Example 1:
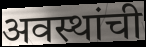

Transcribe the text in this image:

अवस्थांची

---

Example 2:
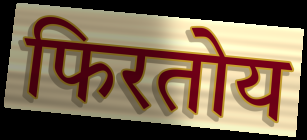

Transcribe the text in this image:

फिरतोय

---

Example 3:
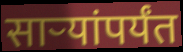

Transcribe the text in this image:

साऱ्यांपर्यंत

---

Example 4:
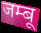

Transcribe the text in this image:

जम्बू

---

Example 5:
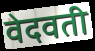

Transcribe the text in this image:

वेदवती